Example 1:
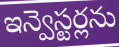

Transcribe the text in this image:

ఇన్వెస్టర్లను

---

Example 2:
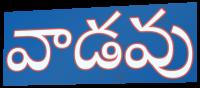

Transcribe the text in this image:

వాడవు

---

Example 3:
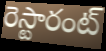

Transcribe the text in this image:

రెస్టారంట్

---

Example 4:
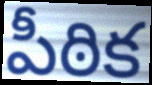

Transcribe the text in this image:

పీఠిక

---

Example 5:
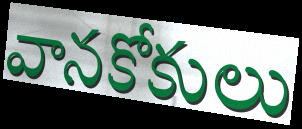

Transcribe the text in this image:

వానకోకులు